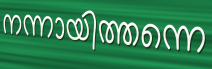
നന്നായിത്തന്നെ